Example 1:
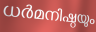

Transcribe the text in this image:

ധർമനിഷ്ഠയും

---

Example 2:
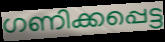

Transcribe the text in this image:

ഗണിക്കപ്പെട്ട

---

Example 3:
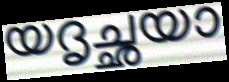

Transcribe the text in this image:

യദൃച്ഛയാ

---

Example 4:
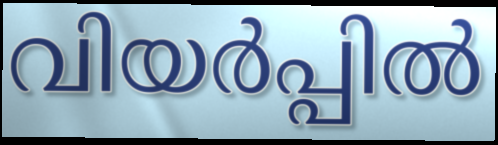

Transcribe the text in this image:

വിയർപ്പിൽ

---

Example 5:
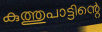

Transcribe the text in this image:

കുത്തുപാട്ടിന്റെ